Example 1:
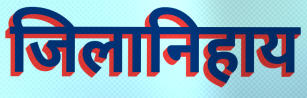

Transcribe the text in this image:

जिलानिहाय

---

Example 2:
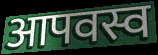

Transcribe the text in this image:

आपवस्व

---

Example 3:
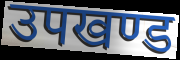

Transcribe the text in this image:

उपखण्ड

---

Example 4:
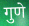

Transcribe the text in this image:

गुणे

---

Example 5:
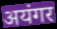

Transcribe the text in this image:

अयंगर